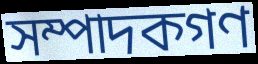
সম্পাদকগণ